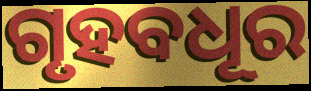
ଗୃହବଧୂର